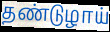
தண்டுழாய்